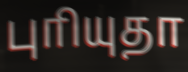
புரியுதா